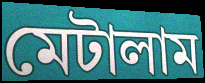
মেটালাম